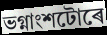
ভগ্নাংশটোৰে